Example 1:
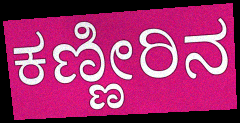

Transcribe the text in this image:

ಕಣ್ಣೀರಿನ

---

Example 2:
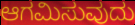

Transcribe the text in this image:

ಆಗಮಿಸುವುದು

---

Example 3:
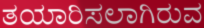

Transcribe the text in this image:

ತಯಾರಿಸಲಾಗಿರುವ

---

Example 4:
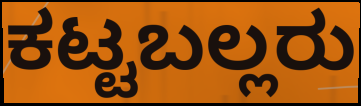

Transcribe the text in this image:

ಕಟ್ಟಬಲ್ಲರು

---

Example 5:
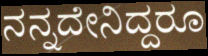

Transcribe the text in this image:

ನನ್ನದೇನಿದ್ದರೂ